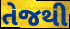
તેજથી